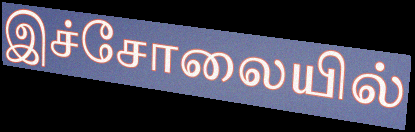
இச்சோலையில்